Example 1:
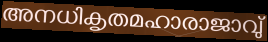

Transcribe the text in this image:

അനധികൃതമഹാരാജാവു്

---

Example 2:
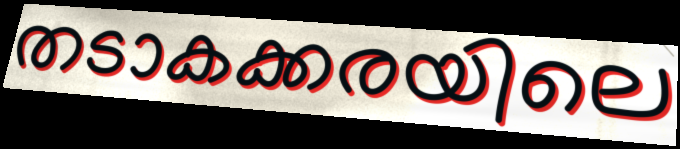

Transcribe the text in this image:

തടാകക്കരയിലെ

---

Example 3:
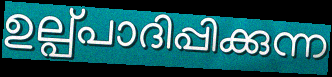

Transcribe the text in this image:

ഉല്പ്പാദിപ്പിക്കുന്ന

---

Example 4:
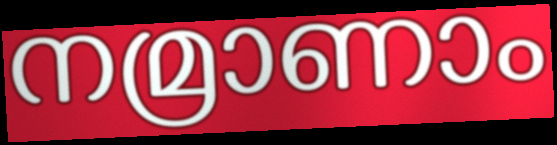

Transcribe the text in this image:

നമ്രാണാം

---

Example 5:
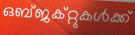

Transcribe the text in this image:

ഒബ്ജക്റ്റുകൾക്ക്